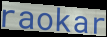
raokar